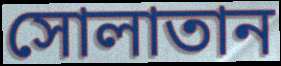
সোলাতান